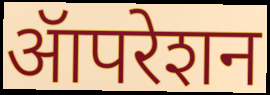
ॲापरेशन